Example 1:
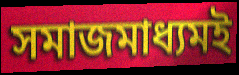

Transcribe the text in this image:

সমাজমাধ্যমই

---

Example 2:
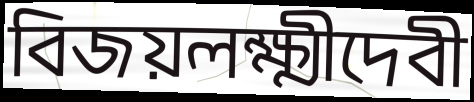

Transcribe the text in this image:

বিজয়লক্ষ্মীদেবী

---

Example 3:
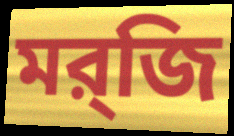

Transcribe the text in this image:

মর্‌জি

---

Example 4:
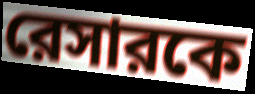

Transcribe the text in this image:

রেসারকে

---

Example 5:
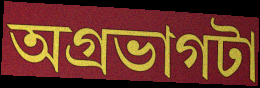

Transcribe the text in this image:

অগ্রভাগটা